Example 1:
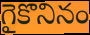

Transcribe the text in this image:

గైకొనినం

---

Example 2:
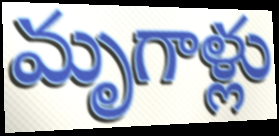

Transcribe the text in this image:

మృగాళ్లు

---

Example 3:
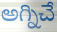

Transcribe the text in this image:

అగ్నిచే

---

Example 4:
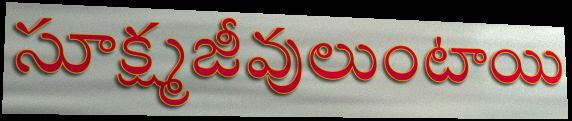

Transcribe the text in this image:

సూక్ష్మజీవులుంటాయి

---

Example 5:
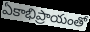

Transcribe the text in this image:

ఏకాభిప్రాయంతో